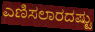
ಎಣಿಸಲಾರದಷ್ಟು